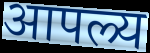
आपल्य